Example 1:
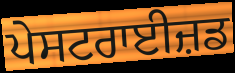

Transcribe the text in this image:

ਪੇਸਟਰਾਈਜ਼ਡ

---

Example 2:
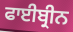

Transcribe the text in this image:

ਫਾਈਬ੍ਰੀਨ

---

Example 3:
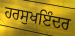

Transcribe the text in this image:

ਹਰਸੁਖਇੰਦਰ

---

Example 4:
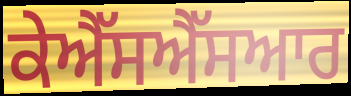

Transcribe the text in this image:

ਕੇਐੱਸਐੱਸਆਰ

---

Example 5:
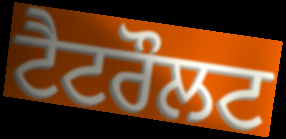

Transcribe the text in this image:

ਟੈਟਰੌਲਟ